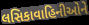
લસિકાવાહિનીઓને